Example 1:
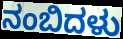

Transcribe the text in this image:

ನಂಬಿದಳು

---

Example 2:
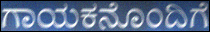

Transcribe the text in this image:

ಗಾಯಕನೊಂದಿಗೆ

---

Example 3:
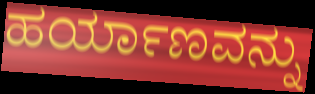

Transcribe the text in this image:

ಹರ್ಯಾಣವನ್ನು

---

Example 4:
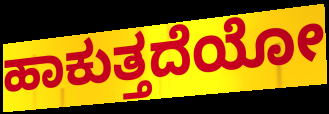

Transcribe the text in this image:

ಹಾಕುತ್ತದೆಯೋ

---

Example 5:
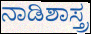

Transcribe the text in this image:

ನಾಡಿಶಾಸ್ತ್ರ